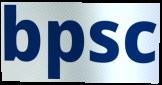
bpsc